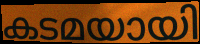
കടമയായി